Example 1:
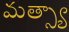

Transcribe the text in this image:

మత్స్యా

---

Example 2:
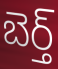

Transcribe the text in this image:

బెర్త్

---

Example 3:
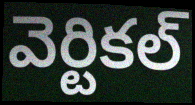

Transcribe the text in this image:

వెర్టికల్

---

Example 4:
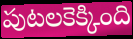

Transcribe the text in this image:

పుటలకెక్కింది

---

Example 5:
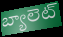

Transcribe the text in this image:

బ్యాలెట్